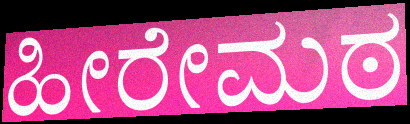
ಹೀರೇಮಠ